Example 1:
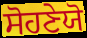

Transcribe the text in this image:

ਸੋਹਣੇਯੋ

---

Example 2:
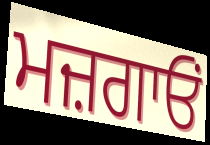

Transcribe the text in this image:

ਮਜ਼ਗਾਓਂ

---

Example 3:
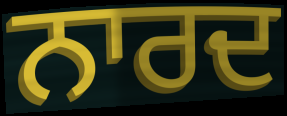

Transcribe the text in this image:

ਨਾਰਦ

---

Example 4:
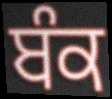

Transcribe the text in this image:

ਬੰਕ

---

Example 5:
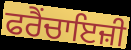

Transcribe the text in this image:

ਫਰੈਂਚਾਇਜ਼ੀ